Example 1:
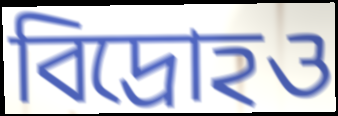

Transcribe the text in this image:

বিদ্রোহও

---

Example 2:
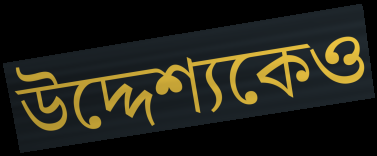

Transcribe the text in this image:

উদ্দেশ্যকেও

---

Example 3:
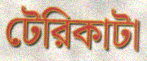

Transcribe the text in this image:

টেরিকাটা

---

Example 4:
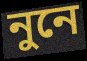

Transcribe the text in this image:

নুনে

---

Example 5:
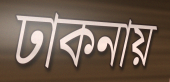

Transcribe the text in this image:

ঢাকনায়